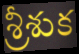
శ్రీశుక